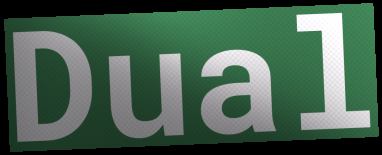
Dual